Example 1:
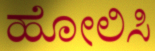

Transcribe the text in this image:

ಹೋಲಿಸಿ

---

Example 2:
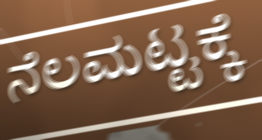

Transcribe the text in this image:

ನೆಲಮಟ್ಟಕ್ಕೆ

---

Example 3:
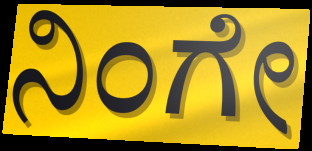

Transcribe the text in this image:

ನಿಂಗೇ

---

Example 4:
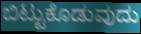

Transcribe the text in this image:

ಬಿಟ್ಟುಕೊಡುವುದು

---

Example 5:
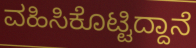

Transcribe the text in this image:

ವಹಿಸಿಕೊಟ್ಟಿದ್ದಾನೆ